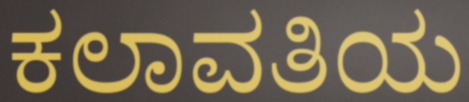
ಕಲಾವತಿಯ